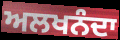
ਅਲਖਨੰਦਾ